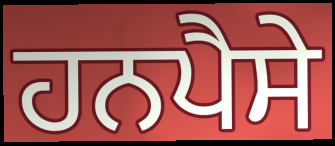
ਹਨਪੈਸੇ